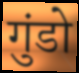
गुंडो